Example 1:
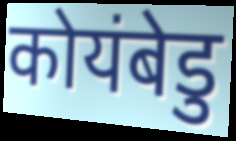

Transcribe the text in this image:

कोयंबेडु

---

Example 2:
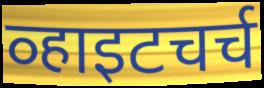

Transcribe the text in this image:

व्हाइटचर्च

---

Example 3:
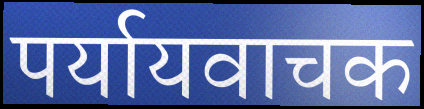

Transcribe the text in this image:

पर्यायवाचक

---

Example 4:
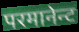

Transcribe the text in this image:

परमानेन्ट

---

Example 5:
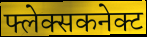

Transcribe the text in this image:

फ्लेक्सकनेक्ट